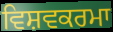
ਵਿਸ਼ਵਕਰਮਾ